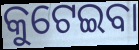
କୁଟେଇବା